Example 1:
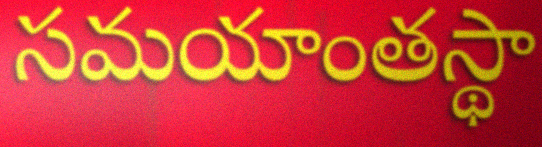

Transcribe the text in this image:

సమయాంతస్థా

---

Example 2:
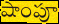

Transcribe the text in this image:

షాంపూ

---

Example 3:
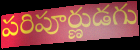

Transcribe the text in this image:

పరిపూర్ణుడగు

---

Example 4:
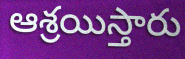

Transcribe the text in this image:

ఆశ్రయిస్తారు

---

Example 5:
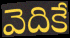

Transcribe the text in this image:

వెదికే